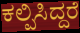
ಕಲ್ಪಿಸಿದ್ದರೆ